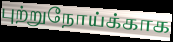
புற்றுநோய்க்காக